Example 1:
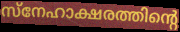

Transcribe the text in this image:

സ്നേഹാക്ഷരത്തിന്റെ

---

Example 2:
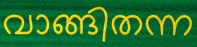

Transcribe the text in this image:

വാങ്ങിതന്ന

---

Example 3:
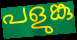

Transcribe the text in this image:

പളുങ്കു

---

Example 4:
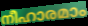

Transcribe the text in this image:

നീഹാരമാം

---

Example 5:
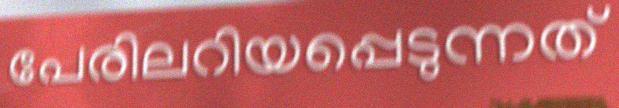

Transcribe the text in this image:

പേരിലറിയപ്പെടുന്നത്